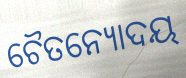
ଚୈତନ୍ୟୋଦୟ